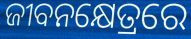
ଜୀବନକ୍ଷେତ୍ରରେ